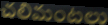
చలిమంటలు